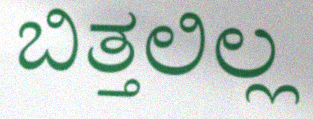
ಬಿತ್ತಲಿಲ್ಲ